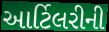
આર્ટિલરીની